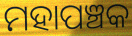
ମହାପଞ୍ଚକ